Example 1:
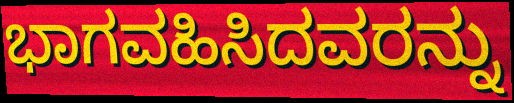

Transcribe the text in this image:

ಭಾಗವಹಿಸಿದವರನ್ನು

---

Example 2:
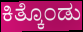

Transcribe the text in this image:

ಕಿತ್ಕೊಂಡು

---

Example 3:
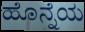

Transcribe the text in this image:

ಹೊನ್ನೆಯ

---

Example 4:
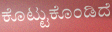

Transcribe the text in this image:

ಕೊಟ್ಟುಕೊಂಡಿದೆ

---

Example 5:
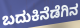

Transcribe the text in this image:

ಬದುಕಿನೆಡೆಗಿನ